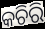
କଚିରି